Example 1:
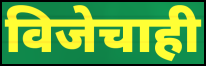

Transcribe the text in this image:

विजेचाही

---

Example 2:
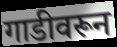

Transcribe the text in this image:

गाडीवरून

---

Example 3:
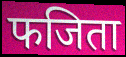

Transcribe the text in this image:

फजिता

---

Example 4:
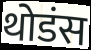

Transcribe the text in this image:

थोडंस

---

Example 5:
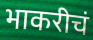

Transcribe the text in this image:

भाकरीचं